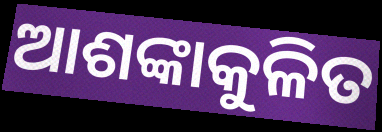
ଆଶଙ୍କାକୁଳିତ